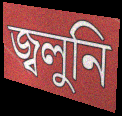
জ্বলুনি